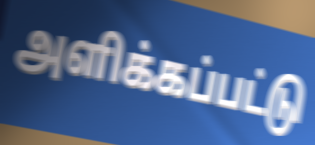
அளிக்கப்பட்டு